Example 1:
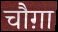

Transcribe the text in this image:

चौग़ा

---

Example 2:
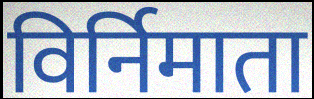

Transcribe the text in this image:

विर्निमाता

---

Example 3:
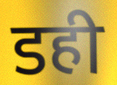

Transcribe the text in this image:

डही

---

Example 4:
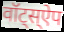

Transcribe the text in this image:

वॉट्स्ऐप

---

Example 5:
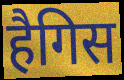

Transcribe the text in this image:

हैगिस